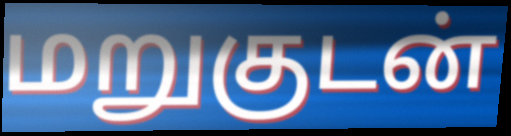
மறுகுடன்